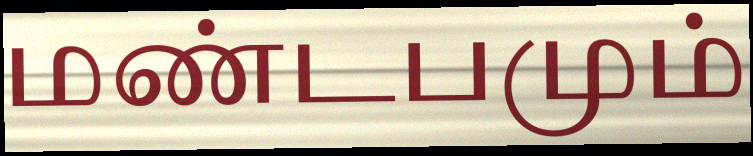
மண்டபமும்